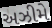
અઝીમે